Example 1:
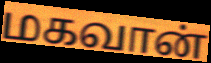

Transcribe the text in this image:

மகவான்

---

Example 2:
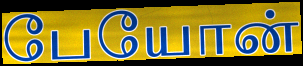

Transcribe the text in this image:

பேயோன்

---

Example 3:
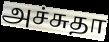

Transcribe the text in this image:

அச்சுதா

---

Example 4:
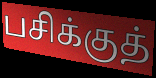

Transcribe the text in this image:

பசிக்குத்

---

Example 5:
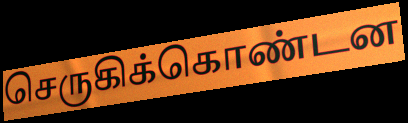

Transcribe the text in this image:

செருகிக்கொண்டன